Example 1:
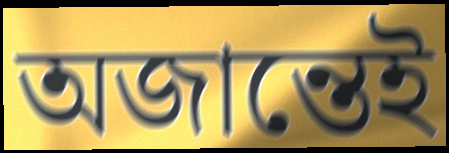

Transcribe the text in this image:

অজান্তেই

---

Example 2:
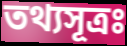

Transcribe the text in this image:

তথ্যসূত্রঃ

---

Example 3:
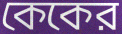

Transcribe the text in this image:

কেকের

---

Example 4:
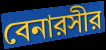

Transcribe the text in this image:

বেনারসীর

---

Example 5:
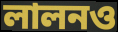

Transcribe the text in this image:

লালনও